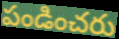
పండించరు